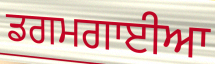
ਡਗਮਗਾਈਆ